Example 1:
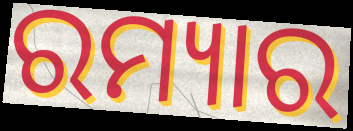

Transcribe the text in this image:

ରମ୍ୟାର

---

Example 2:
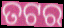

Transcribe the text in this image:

ତଟର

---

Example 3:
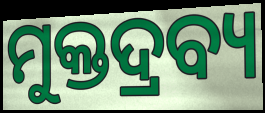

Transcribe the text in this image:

ମୁକ୍ତଦ୍ରବ୍ୟ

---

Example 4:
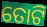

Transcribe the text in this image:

ତୋଟି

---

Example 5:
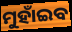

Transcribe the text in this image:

ମୁହାଁଇବ